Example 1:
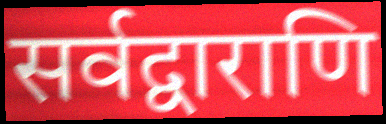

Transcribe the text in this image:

सर्वद्वाराणि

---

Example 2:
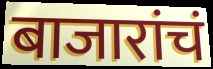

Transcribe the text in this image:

बाजारांचं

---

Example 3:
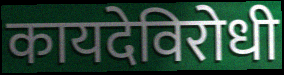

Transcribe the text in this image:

कायदेविरोधी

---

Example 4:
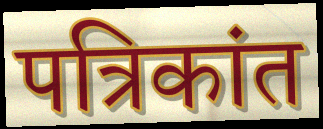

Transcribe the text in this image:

पत्रिकांत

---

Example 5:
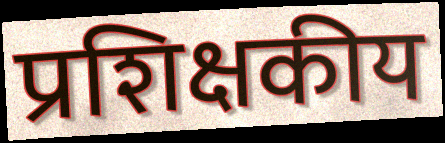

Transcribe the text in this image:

प्रशिक्षकीय